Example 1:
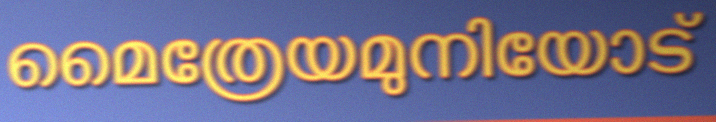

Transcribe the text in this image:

മൈത്രേയമുനിയോട്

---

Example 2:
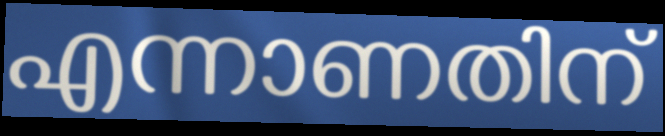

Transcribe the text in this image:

എന്നാണതിന്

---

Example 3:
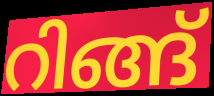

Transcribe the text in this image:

റിങ്ങ്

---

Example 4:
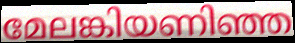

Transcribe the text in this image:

മേലങ്കിയണിഞ്ഞ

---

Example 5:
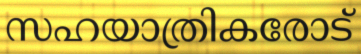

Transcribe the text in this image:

സഹയാത്രികരോട്